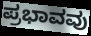
ಪ್ರಭಾವವು